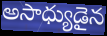
అసాధ్యుడైన